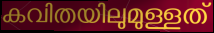
കവിതയിലുമുള്ളത്